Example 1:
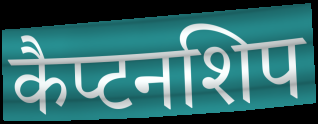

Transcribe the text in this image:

कैप्टनशिप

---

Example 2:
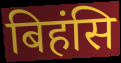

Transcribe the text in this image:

बिहंसि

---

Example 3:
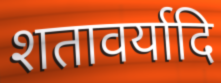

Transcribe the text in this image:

शतावर्यादि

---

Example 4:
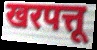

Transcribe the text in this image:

खरपत्तू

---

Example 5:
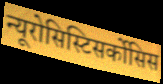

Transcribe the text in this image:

न्यूरोसिस्टिसर्कोसिस